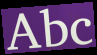
Abc